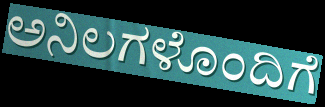
ಅನಿಲಗಳೊಂದಿಗೆ